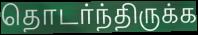
தொடர்ந்திருக்க